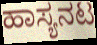
ಹಾಸ್ಯನಟ